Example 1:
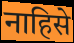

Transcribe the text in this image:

नाहिसे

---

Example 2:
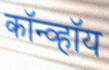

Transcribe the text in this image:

कॉन्व्हॉय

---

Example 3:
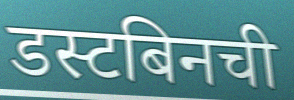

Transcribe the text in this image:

डस्टबिनची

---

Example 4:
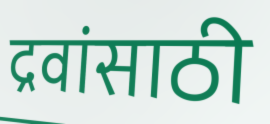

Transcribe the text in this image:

द्रवांसाठी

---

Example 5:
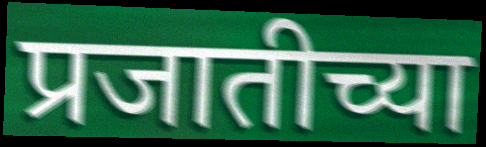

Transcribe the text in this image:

प्रजातीच्या